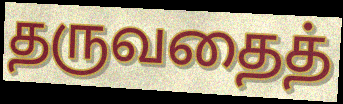
தருவதைத்